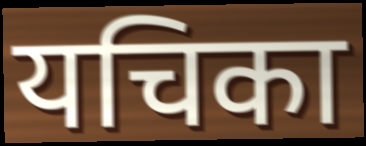
यचिका